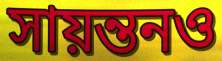
সায়ন্তনও